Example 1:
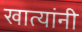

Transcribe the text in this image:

खात्यांनी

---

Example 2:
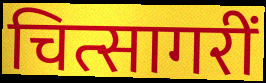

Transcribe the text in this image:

चित्सागरीं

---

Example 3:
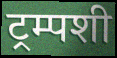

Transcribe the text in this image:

ट्रम्पशी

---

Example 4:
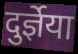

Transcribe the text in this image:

दुर्ज्ञेया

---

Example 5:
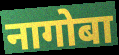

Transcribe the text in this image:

नागोबा